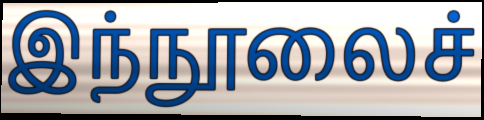
இந்நூலைச்